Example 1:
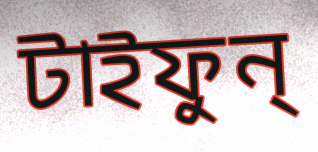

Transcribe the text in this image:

টাইফুন্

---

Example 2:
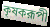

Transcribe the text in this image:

কৃষকরূপী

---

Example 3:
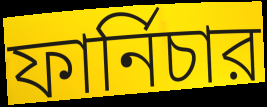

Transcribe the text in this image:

ফার্নিচার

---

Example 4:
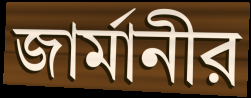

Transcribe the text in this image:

জার্মানীর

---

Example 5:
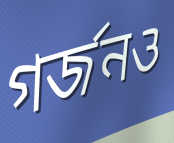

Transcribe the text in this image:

গর্জনও